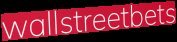
wallstreetbets